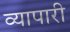
व्‍यापारी